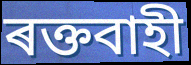
ৰক্তবাহী